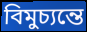
বিমুচ্যন্তে